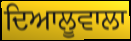
ਦਿਆਲੂਵਾਲਾ